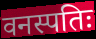
वनस्पतिः